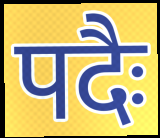
पदैः